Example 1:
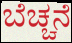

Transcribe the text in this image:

ಬೆಚ್ಚನೆ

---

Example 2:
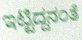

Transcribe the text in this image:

ಇಟ್ಟಿದ್ದನಂತೆ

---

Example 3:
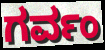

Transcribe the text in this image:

ಗರ್ವಂ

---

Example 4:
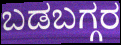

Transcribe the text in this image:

ಬಡಬಗ್ಗರ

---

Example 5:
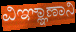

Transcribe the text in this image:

ವಿಞ್ಞಾಣಾನಿ